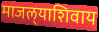
माजल्याशिवाय